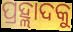
ପ୍ରହ୍ଲାଦକୁ